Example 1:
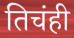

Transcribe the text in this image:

तिचंही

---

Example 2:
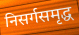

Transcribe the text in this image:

निसर्गसमृद्ध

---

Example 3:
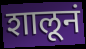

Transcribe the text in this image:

शालूनं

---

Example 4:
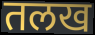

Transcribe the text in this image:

तलख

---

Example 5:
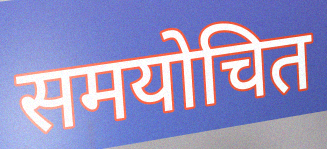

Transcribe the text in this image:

समयोचित